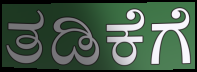
ತಡಿಕೆಗೆ